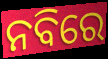
ନବିରେ